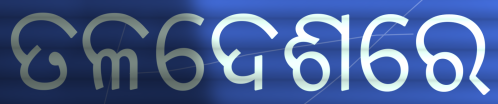
ତଳଦେଶରେ